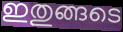
ഇതുങ്ങടെ